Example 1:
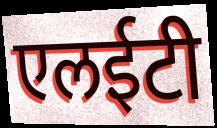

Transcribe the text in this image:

एलईटी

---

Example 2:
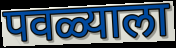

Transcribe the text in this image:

पवळ्याला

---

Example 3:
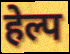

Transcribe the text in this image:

हेल्प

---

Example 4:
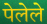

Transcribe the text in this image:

पेलेले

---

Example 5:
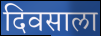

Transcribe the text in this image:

दिवसाला